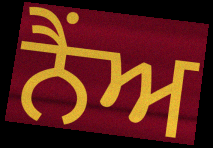
ਨੈਂਅ